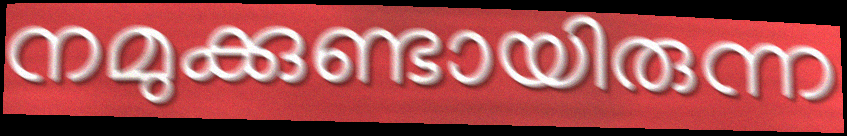
നമുക്കുണ്ടായിരുന്ന